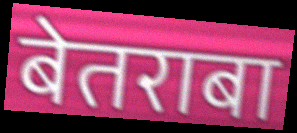
बेतराबा